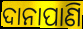
ଦାନାପାଣି